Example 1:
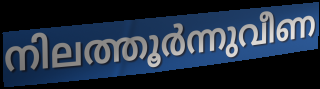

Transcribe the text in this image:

നിലത്തൂർന്നുവീണ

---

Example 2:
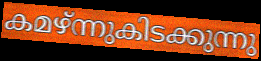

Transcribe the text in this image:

കമഴ്ന്നുകിടക്കുന്നു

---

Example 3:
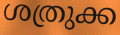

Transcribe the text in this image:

ശത്രുക്ക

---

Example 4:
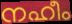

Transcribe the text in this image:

നഹീം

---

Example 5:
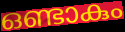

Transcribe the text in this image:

ഒണ്ടാകും